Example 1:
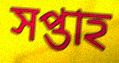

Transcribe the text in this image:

সপ্তাহ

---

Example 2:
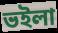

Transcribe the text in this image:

ভইলা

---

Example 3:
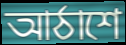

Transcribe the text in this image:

আঠাশে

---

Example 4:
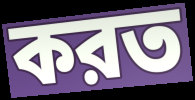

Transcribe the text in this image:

করত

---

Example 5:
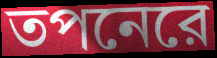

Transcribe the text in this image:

তপনেরে